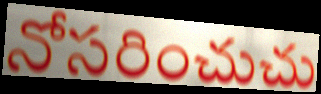
నోసరించుచు